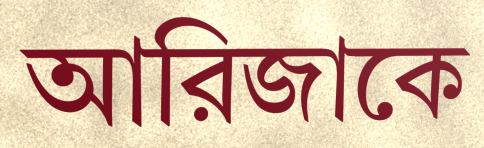
আরিজাকে